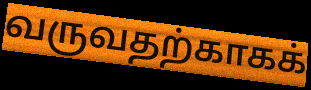
வருவதற்காகக்